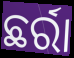
ଛର୍ରା